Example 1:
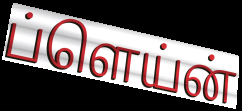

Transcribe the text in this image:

ப்ளெய்ன்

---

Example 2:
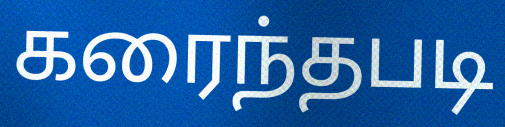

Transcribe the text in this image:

கரைந்தபடி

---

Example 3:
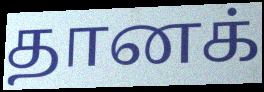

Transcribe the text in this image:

தானக்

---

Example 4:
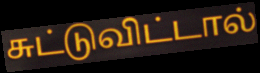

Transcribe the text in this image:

சுட்டுவிட்டால்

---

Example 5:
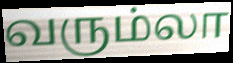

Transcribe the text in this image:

வரும்லா